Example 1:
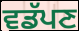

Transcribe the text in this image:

ਵਡੱਪਣ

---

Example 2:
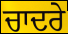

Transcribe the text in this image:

ਚਾਦਰੇ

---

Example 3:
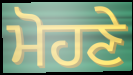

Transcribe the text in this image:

ਮੋਹਣੇ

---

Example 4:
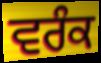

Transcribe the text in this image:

ਵਰੰਕ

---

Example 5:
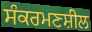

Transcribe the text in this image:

ਸੰਕਰਮਣਸ਼ੀਲ